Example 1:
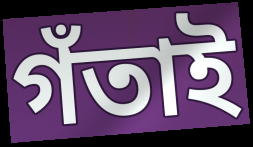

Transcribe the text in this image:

গঁতাই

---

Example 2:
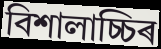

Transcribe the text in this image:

বিশালাচ্চিৰ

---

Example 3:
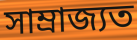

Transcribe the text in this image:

সাম্ৰাজ্যত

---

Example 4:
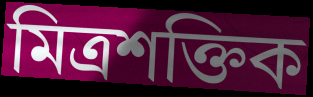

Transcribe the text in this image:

মিত্ৰশক্তিক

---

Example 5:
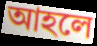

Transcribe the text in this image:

আহলে